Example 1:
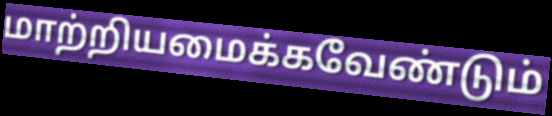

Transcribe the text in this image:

மாற்றியமைக்கவேண்டும்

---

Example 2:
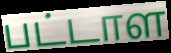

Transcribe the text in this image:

பட்டாள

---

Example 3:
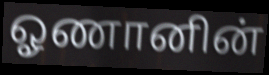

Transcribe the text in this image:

ஓணானின்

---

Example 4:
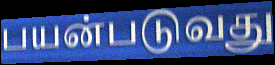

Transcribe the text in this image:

பயன்படுவது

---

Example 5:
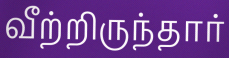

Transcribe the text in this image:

வீற்றிருந்தார்